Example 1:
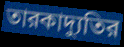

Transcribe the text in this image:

তারকাদ্যুতির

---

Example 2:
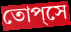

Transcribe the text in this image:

তোপ্‌সে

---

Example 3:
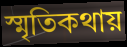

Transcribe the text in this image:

স্মৃতিকথায়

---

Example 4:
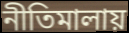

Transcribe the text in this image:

নীতিমালায়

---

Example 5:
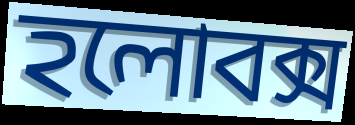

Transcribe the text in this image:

হলোবক্স